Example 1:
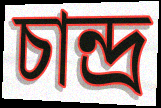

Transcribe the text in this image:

চান্দ্ৰ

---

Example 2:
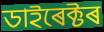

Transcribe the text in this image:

ডাইৰেক্টৰ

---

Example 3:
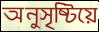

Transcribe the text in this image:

অনুসৃষ্টিয়ে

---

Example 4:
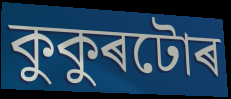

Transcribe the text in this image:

কুকুৰটোৰ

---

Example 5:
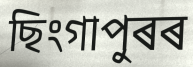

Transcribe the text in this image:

ছিংগাপুৰৰ